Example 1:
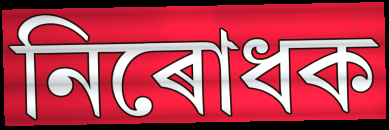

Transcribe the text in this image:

নিৰোধক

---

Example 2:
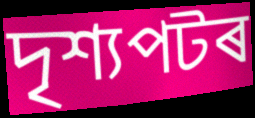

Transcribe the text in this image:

দৃশ্যপটৰ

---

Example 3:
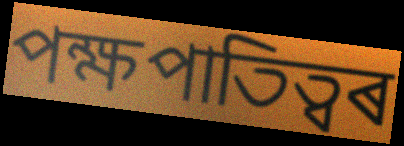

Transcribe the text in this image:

পক্ষপাতিত্বৰ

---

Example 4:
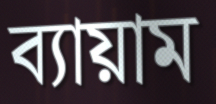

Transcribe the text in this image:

ব্যায়াম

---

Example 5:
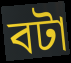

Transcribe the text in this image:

বটা